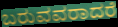
ಬರುವವರಾದರೆ